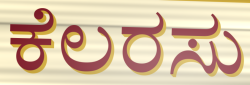
ಕೆಲರಸು